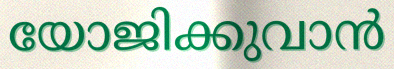
യോജിക്കുവാൻ